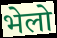
भेलो